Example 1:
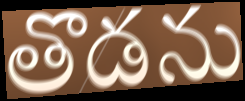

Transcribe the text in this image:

తొడను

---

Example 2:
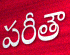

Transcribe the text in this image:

పరీతౌ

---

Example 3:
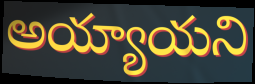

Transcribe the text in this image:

అయ్యాయని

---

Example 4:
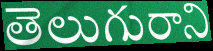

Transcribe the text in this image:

తెలుగురాని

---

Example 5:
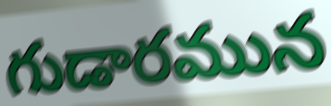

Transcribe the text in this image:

గుడారమున